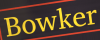
Bowker